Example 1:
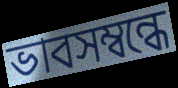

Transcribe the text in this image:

ভাবসম্বন্ধে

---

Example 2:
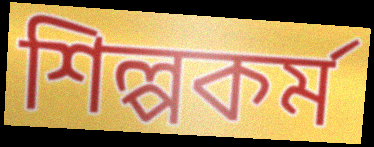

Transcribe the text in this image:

শিল্পকর্ম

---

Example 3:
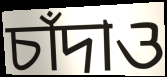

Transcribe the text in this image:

চাঁদাও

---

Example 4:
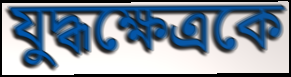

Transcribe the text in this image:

যুদ্ধক্ষেত্রকে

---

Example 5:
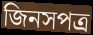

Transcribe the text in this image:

জিনসপত্র